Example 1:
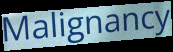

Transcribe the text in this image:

Malignancy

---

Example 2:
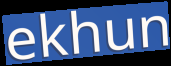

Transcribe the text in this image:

ekhun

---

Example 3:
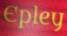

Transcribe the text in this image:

Epley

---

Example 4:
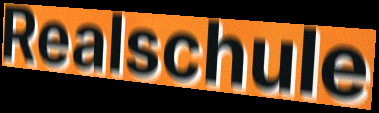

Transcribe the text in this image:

Realschule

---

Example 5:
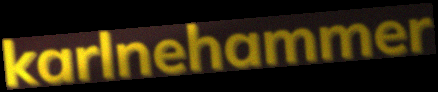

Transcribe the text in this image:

karlnehammer